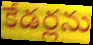
కేడర్లను